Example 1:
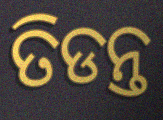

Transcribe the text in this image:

ତିଡନ୍ତ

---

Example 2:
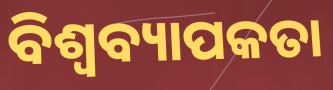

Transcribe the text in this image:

ବିଶ୍ୱବ୍ୟାପକତା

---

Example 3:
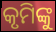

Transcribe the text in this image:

କୃମିଙ୍କୁ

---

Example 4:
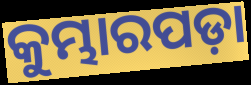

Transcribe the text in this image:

କୁମ୍ଭାରପଡ଼ା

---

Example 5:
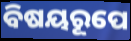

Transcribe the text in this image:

ବିଷୟରୂପେ